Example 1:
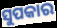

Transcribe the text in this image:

ସୁପକାର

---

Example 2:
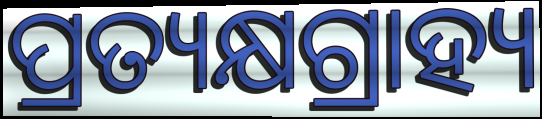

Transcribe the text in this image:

ପ୍ରତ୍ୟକ୍ଷଗ୍ରାହ୍ୟ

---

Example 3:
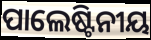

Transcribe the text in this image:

ପାଲେଷ୍ଟିନୀୟ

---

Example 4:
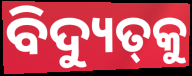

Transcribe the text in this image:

ବିଦ୍ୟୁତ୍‌କୁ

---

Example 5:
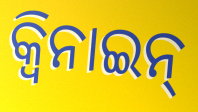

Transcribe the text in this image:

କ୍ୱିନାଇନ୍